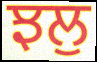
ਝਲੁ